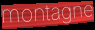
montagne